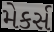
મેકર્સ